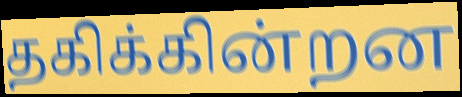
தகிக்கின்றன